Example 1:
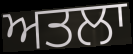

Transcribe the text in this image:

ਅਤਲਾ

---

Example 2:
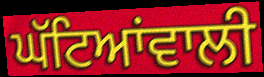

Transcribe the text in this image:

ਘੱਟਿਆਂਵਾਲੀ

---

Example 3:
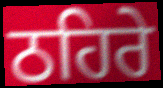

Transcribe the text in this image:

ਠਹਿਰੇ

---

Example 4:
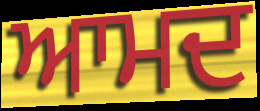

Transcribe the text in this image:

ਆਮਦ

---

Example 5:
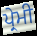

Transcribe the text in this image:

ਪ੍ਰੇਮੀ